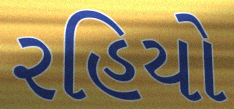
રહિયો